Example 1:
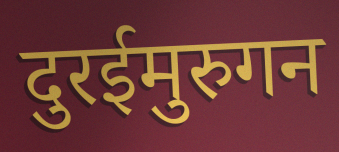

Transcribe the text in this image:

दुरईमुरुगन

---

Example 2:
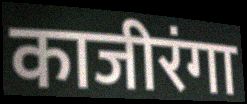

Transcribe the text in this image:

काजीरंगा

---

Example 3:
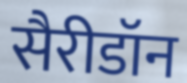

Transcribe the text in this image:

सैरीडॉन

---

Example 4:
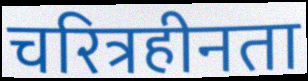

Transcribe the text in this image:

चरित्रहीनता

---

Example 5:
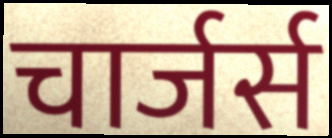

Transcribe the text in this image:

चार्जर्स